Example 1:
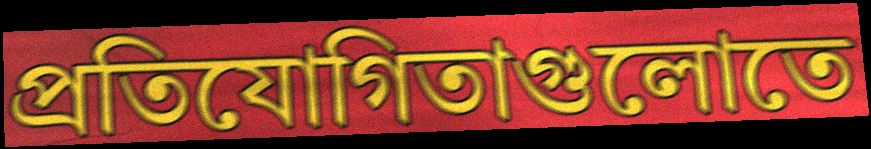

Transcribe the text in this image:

প্রতিযোগিতাগুলোতে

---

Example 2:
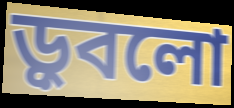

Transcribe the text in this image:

ড়ুবলো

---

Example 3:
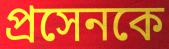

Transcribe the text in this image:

প্রসেনকে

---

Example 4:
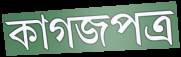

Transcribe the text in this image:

কাগজপত্র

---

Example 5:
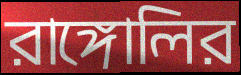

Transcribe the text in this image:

রাঙ্গোলির